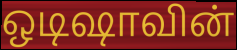
ஒடிஷாவின்